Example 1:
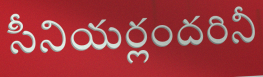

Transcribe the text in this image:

సీనియర్లందరినీ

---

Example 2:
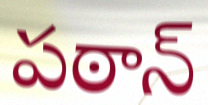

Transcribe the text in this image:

పఠాన్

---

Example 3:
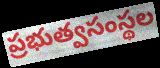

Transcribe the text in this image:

ప్రభుత్వసంస్థల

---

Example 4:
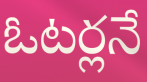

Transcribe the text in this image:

ఓటర్లనే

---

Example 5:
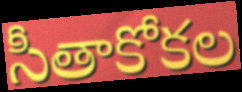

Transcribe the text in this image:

సీతాకోకల